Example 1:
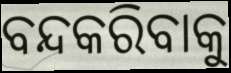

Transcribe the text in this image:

ବନ୍ଦକରିବାକୁ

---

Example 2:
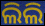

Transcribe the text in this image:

ଲିଲି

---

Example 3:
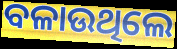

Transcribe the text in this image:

ବଳାଉଥିଲେ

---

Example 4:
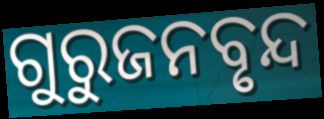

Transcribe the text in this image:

ଗୁରୁଜନବୃନ୍ଦ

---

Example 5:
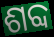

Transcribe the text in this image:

ଶବ୍ଦ